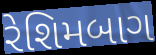
રેશિમબાગ